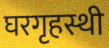
घरगृहस्थी